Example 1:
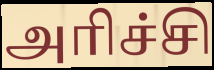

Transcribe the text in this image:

அரிச்சி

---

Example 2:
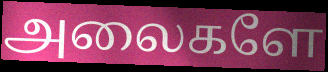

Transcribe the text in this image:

அலைகளே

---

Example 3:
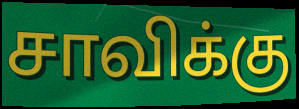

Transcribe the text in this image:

சாவிக்கு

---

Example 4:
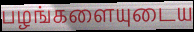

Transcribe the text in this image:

பழங்களையுடைய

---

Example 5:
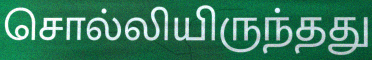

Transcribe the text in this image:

சொல்லியிருந்தது